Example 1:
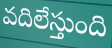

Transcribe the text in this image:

వదిలేస్తుంది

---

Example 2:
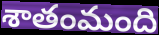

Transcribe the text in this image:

శాతంమంది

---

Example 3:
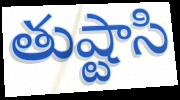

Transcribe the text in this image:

తుష్టాసి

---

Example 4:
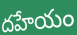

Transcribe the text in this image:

దహేయం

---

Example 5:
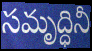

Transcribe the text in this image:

సమృద్ధినీ